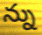
న్ను